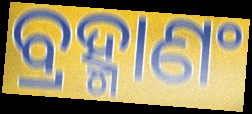
ବ୍ରହ୍ମାଣଂ